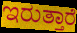
ಇರುತ್ತಾರೆ